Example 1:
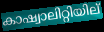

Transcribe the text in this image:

കാഷ്വാലിറ്റിയില്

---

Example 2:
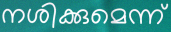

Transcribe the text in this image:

നശിക്കുമെന്ന്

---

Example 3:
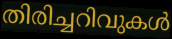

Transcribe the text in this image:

തിരിച്ചറിവുകൾ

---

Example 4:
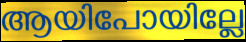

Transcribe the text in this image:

ആയിപോയില്ലേ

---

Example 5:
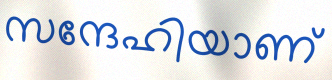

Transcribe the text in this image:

സന്ദേഹിയാണ്